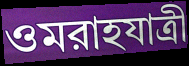
ওমরাহযাত্রী